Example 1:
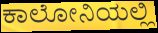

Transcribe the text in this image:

ಕಾಲೋನಿಯಲ್ಲಿ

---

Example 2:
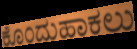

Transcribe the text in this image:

ಕೊಂದುಹಾಕಲು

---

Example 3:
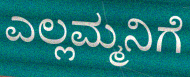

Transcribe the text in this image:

ಎಲ್ಲಮ್ಮನಿಗೆ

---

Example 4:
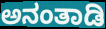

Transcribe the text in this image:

ಅನಂತಾಡಿ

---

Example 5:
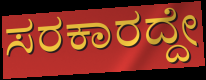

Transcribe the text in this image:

ಸರಕಾರದ್ದೇ